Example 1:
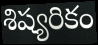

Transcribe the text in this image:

శిష్యరికం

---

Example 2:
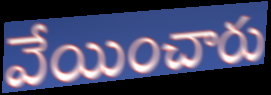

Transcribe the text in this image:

వేయించారు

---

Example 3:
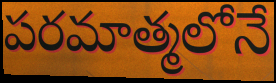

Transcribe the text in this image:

పరమాత్మలోనే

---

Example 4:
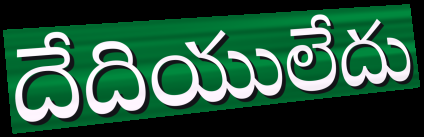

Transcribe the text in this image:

దేదియులేదు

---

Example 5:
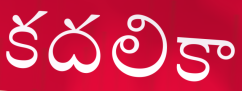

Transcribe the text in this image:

కదలికా